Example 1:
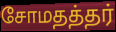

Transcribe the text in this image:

சோமதத்தர்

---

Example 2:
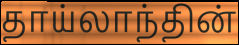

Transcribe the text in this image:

தாய்லாந்தின்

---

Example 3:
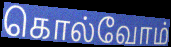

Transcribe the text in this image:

கொல்வோம்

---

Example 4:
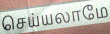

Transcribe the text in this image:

செய்யலாமே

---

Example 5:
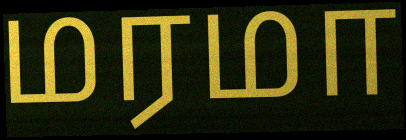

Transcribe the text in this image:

மரமா